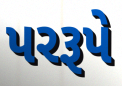
પરરૂપે